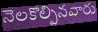
నెలకొల్పినవారు